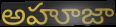
అహూజా